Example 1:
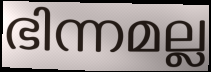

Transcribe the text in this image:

ഭിന്നമല്ല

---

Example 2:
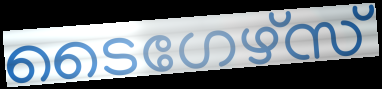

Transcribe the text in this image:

ടൈഗേഴ്സ്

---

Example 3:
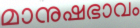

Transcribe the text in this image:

മാനുഷഭാവം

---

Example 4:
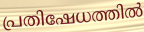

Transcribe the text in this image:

പ്രതിഷേധത്തിൽ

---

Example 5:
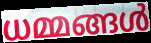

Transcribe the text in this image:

ധമ്മങ്ങൾ